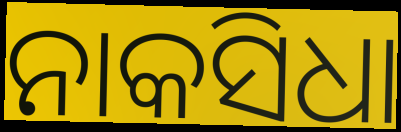
ନାକସିଧା